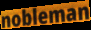
nobleman